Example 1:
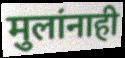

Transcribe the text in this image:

मुलांनाही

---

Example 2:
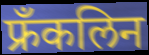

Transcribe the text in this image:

फ्रँकलिन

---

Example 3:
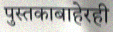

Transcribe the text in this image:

पुस्तकाबाहेरही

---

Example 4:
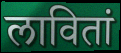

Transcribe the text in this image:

लावितां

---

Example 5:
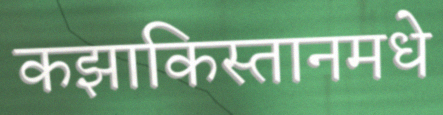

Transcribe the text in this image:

कझाकिस्तानमधे